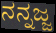
ನನ್ನಜ್ಜ